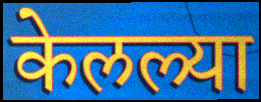
केलल्या